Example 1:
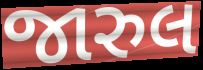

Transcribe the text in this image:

જારુલ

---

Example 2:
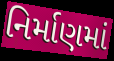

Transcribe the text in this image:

નિર્માણમાં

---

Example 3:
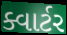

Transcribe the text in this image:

ક્વાર્ટર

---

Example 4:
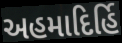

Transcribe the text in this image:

અહમાદિર્હિ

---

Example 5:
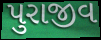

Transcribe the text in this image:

પુરાજીવ